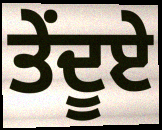
ਤੇਂਦੂਏ